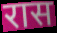
रास